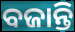
ବଜାନ୍ତି